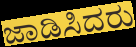
ಜಾಡಿಸಿದರು